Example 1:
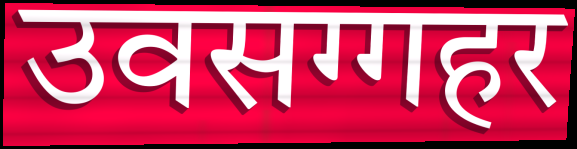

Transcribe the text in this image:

उवसग्गहर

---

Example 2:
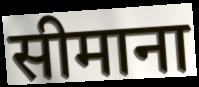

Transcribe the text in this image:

सीमाना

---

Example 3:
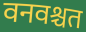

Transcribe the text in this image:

वनवश्चत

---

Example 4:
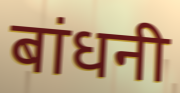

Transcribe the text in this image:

बांधनी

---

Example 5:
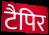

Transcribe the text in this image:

टैपिर